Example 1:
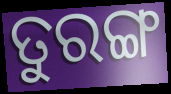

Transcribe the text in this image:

ତୁରଙ୍ଗ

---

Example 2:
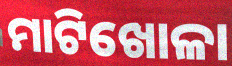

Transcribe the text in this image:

ମାଟିଖୋଳା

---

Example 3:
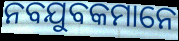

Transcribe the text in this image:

ନବଯୁବକମାନେ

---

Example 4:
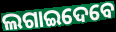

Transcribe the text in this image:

ଲଗାଇଦେବେ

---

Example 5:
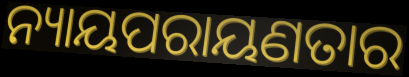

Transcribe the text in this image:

ନ୍ୟାୟପରାୟଣତାର